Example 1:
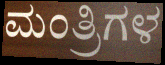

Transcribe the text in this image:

ಮಂತ್ರಿಗಳ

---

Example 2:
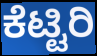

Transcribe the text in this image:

ಕೆಟ್ಟಿರಿ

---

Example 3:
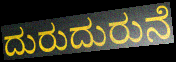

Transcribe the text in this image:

ದುರುದುರುನೆ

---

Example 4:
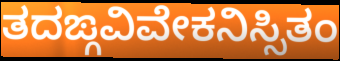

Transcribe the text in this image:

ತದಙ್ಗವಿವೇಕನಿಸ್ಸಿತಂ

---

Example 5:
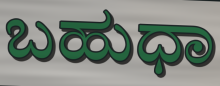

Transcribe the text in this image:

ಬಹುಧಾ